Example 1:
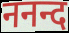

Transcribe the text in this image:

ननन्द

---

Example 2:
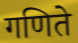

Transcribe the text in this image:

गणिते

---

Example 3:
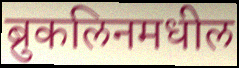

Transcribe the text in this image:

ब्रुकलिनमधील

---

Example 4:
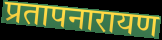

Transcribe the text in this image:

प्रतापनारायण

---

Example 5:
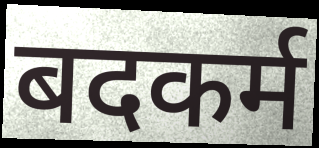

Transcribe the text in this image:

बदकर्म